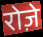
रोज़े